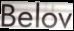
Belov